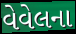
વેવેલના